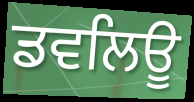
ਡਵਲਿਊ